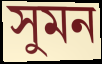
সুমন